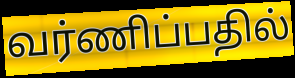
வர்ணிப்பதில்